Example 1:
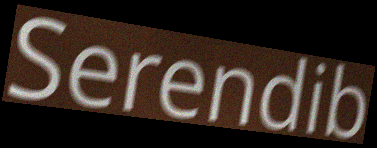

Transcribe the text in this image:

Serendib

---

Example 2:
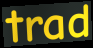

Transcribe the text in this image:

trad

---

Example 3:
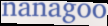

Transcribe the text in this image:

nanagoo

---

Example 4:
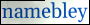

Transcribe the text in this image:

namebley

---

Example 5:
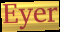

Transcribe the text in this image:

Eyer